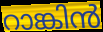
റാങ്കിൻ